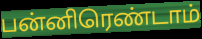
பன்னிரெண்டாம்